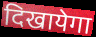
दिखायेगा